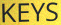
KEYS